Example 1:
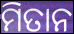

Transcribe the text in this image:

ମିତାନ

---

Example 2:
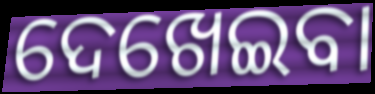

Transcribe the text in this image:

ଦେଖେଇବା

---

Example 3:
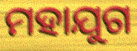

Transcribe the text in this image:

ମହାଯୁଗ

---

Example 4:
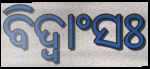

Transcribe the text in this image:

ବିଦ୍ଵାଂସଃ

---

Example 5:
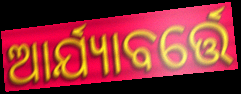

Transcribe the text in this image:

ଆର୍ଯ୍ୟାବର୍ତ୍ତେ